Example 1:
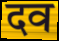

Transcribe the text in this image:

दव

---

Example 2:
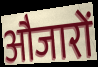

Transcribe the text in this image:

औजारों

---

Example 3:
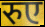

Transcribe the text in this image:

रुए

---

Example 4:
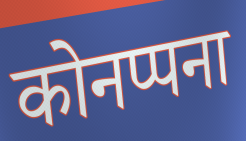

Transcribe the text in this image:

कोनप्पना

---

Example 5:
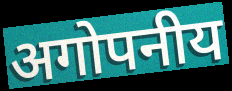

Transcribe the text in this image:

अगोपनीय